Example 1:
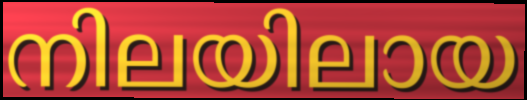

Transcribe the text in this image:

നിലയിലായ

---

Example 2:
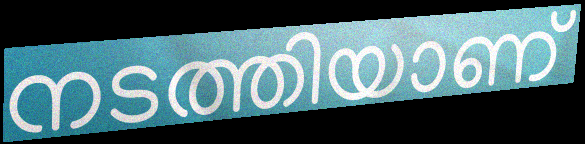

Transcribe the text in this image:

നടത്തിയാണ്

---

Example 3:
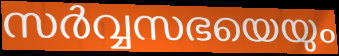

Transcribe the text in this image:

സർവ്വസഭയെയും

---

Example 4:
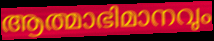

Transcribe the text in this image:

ആത്മാഭിമാനവും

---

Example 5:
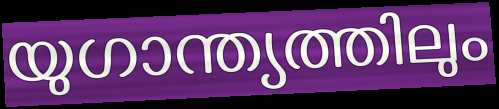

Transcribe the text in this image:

യുഗാന്ത്യത്തിലും